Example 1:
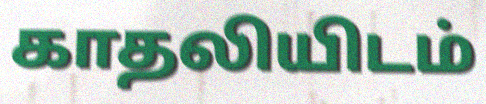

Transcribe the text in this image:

காதலியிடம்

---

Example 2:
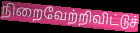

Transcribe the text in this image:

நிறைவேற்றிவிட்டுச்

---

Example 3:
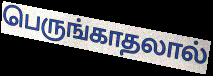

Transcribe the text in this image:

பெருங்காதலால்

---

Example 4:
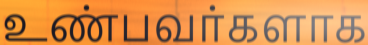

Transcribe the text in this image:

உண்பவர்களாக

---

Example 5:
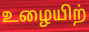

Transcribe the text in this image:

உழையிற்